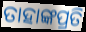
ତାହାଙ୍କପ୍ରତି